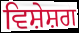
ਵਿਸ਼ੇਸ਼ਗ